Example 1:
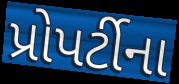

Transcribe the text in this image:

પ્રોપર્ટીના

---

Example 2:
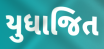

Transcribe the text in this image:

યુધાજિત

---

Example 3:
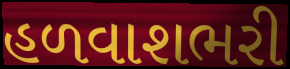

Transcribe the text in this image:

હળવાશભરી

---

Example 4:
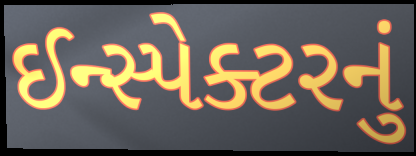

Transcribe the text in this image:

ઈન્સ્પેક્ટરનું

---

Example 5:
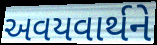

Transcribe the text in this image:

અવયવાર્થને